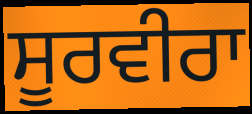
ਸੂਰਵੀਰਾ